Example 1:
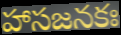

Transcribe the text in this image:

హాసజనకః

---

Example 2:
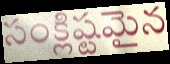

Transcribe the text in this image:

సంక్లిష్టమైన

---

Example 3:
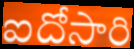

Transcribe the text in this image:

ఐదోసారి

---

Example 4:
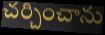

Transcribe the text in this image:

చర్చించాను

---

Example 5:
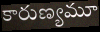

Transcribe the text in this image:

కారుణ్యమూ